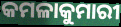
କମଳାକୁମାରୀ